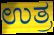
ಉತ್ರ